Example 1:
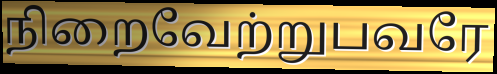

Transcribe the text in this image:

நிறைவேற்றுபவரே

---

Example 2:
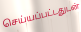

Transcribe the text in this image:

செய்யப்பட்டதுடன்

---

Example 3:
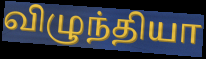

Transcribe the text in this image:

விழுந்தியா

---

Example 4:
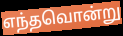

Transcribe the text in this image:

எந்தவொன்று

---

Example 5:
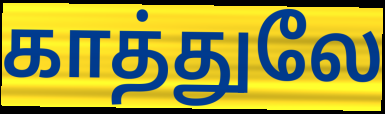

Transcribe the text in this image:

காத்துலே